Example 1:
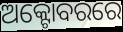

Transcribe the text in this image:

ଅକ୍ଟୋବରରେ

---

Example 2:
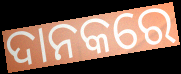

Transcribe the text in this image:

ଦାନକରେ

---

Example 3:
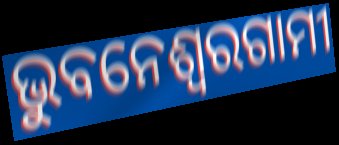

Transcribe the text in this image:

ଭୁବନେଶ୍ୱରଗାମୀ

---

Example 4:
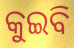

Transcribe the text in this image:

କୁଇବି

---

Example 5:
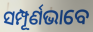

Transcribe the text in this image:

ସମ୍ପୂର୍ଣଭାବେ